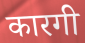
कारगी